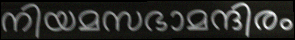
നിയമസഭാമന്ദിരം